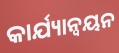
କାର୍ଯ୍ୟାନ୍ୱୟନ